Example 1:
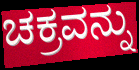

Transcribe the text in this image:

ಚಕ್ರವನ್ನು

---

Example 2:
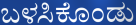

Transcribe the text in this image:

ಬಳಸಿಕೊಂಡು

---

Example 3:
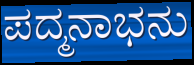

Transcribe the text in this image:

ಪದ್ಮನಾಭನು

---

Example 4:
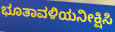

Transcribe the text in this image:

ಭೂತಾವಳಿಯನೀಕ್ಷಿಸಿ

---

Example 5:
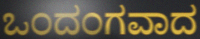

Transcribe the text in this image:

ಒಂದಂಗವಾದ